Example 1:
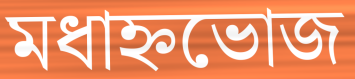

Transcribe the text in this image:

মধাহ্নভোজ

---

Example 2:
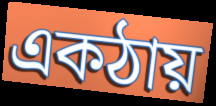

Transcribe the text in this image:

একঠায়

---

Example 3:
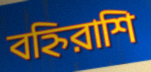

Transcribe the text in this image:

বহ্নিরাশি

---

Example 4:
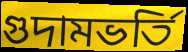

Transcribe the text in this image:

গুদামভর্তি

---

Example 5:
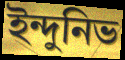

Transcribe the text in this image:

ইন্দুনিভ